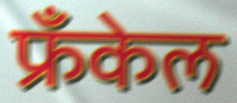
फ्रँकेल